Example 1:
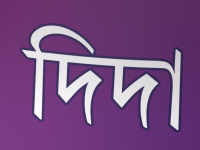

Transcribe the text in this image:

দিদা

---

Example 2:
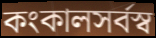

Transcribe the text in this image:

কংকালসর্বস্ব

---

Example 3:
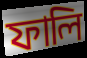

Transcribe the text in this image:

ফালি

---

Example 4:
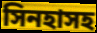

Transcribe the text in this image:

সিনহাসহ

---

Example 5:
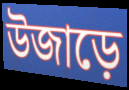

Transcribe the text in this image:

উজাড়ে